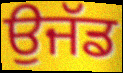
ਉਜੱਡ